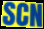
SCN